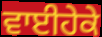
ਵਾਈਹੇਕੇ